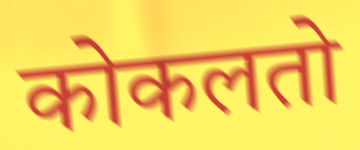
कोकलतो